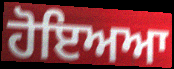
ਹੋਇਅਆ